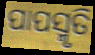
ପାପସ୍ମୃତି